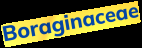
Boraginaceae